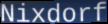
Nixdorf